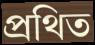
প্রথিত